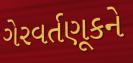
ગેરવર્તણૂકને